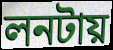
লনটায়